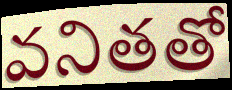
వనితతో